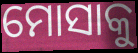
ମୋସାକୁ